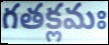
గతక్లమః